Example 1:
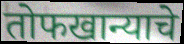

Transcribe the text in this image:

तोफखान्याचे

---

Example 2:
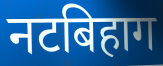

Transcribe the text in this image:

नटबिहाग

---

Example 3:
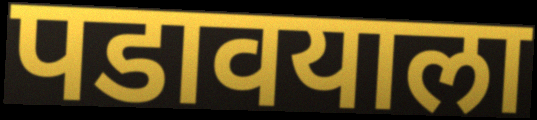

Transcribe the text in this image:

पडावयाला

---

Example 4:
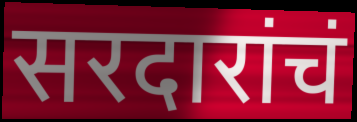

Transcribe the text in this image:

सरदारांचं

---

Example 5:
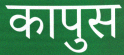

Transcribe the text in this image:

कापुस